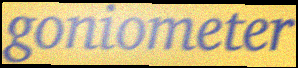
goniometer